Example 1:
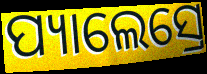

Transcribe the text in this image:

ପ୍ୟାଲେସ୍ରେ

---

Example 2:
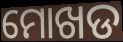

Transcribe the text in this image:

ମୋଖଡ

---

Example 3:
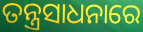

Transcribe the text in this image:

ତନ୍ତ୍ରସାଧନାରେ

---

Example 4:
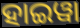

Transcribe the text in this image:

ହାଇୱା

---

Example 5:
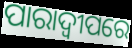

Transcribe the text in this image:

ପାରାଦ୍ବୀପରେ